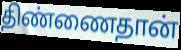
திண்ணைதான்